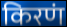
किरणं